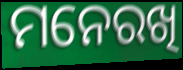
ମନେରଖି